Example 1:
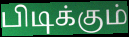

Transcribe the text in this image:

பிடிக்கும்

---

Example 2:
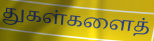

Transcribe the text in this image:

துகள்களைத்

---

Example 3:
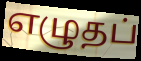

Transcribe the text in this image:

எழுதப்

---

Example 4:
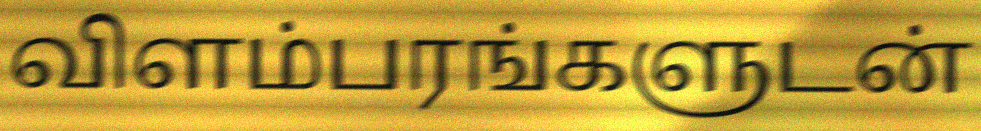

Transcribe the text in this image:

விளம்பரங்களுடன்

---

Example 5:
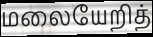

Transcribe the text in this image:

மலையேறித்